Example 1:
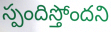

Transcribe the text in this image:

స్పందిస్తోందని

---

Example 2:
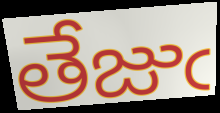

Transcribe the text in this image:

తేజుఁ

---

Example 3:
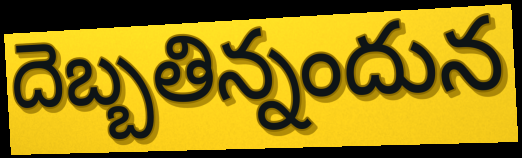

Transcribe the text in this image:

దెబ్బతిన్నందున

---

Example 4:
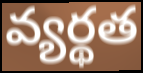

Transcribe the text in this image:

వ్యర్థత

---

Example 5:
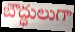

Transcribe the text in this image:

బౌద్ధులుగా